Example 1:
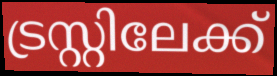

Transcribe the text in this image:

ട്രസ്റ്റിലേക്ക്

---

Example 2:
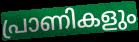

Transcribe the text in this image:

പ്രാണികളും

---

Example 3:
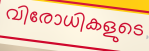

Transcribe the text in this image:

വിരോധികളുടെ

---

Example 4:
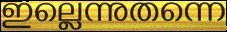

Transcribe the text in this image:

ഇല്ലെന്നുതന്നെ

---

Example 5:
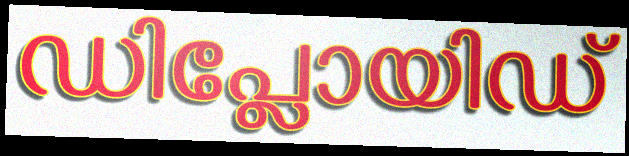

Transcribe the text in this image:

ഡിപ്ലോയിഡ്